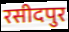
रसीदपुर